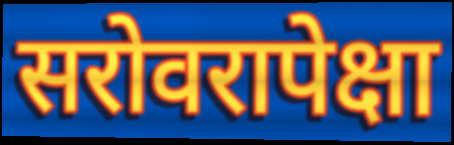
सरोवरापेक्षा